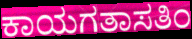
ಕಾಯಗತಾಸತಿಂ